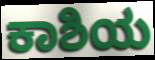
ಕಾಶಿಯ